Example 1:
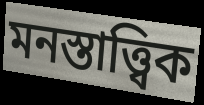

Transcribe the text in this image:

মনস্তাত্ত্বিক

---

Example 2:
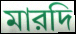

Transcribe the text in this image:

মারদি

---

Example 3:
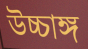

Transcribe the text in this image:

উচ্চাঙ্গ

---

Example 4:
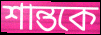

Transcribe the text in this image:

শান্তকে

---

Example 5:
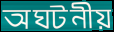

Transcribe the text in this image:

অঘটনীয়